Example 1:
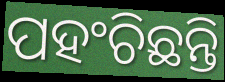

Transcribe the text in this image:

ପହଂଚିଛନ୍ତି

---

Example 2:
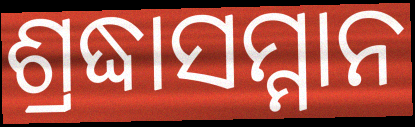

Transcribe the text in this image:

ଶ୍ରଦ୍ଧାସମ୍ମାନ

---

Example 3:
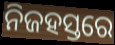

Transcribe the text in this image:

ନିଜହସ୍ତରେ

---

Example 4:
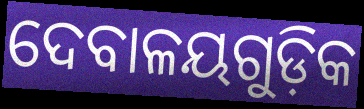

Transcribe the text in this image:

ଦେବାଳୟଗୁଡ଼ିକ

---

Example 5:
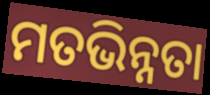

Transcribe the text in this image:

ମତଭିନ୍ନତା